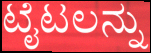
ಟೈಟಲನ್ನು